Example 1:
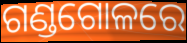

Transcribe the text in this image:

ଗଣ୍ଡଗୋଳରେ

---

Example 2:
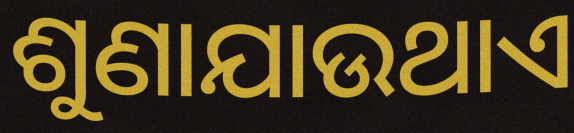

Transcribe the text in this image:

ଶୁଣାଯାଉଥାଏ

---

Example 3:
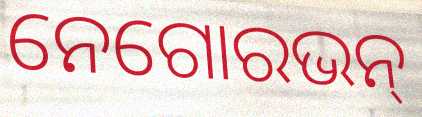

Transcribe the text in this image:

ନେଗୋରଭନ୍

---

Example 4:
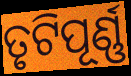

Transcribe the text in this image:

ତୃଟିପୂର୍ଣ୍ଣ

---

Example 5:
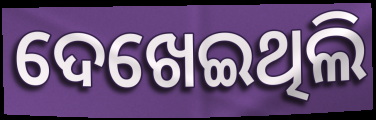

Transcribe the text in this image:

ଦେଖେଇଥିଲି